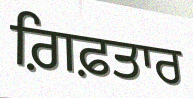
ਗ਼ਿਫ਼ਤਾਰ